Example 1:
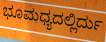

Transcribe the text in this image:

ಭೂಮಧ್ಯದಲ್ಲಿರ್ದು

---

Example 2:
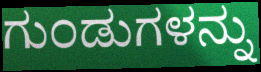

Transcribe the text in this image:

ಗುಂಡುಗಳನ್ನು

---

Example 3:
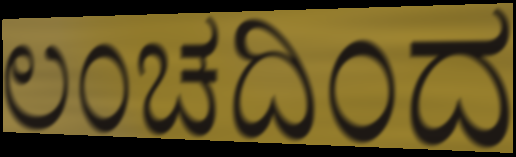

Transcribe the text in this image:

ಲಂಚದಿಂದ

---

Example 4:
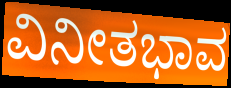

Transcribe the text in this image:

ವಿನೀತಭಾವ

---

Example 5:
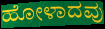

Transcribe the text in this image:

ಹೋಳಾದವು